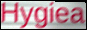
Hygiea